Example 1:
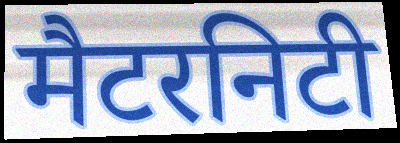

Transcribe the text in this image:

मैटरनिटी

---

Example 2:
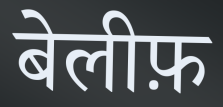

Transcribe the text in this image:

बेलीफ़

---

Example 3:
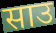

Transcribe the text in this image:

साउ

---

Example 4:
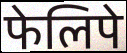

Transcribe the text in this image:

फेलिपे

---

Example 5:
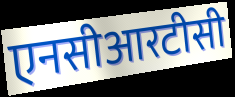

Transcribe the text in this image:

एनसीआरटीसी